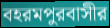
বহরমপুরবাসীর